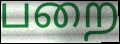
பறை